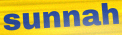
sunnah